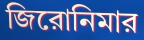
জিরোনিমার